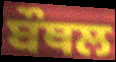
ਬੌਥਲ